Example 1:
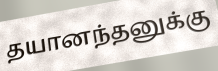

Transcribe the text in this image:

தயானந்தனுக்கு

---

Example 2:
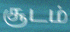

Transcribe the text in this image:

சூடம்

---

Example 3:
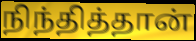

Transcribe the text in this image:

நிந்தித்தான்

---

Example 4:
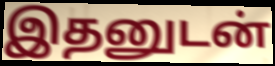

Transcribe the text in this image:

இதனுடன்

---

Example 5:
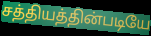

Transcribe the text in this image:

சத்தியத்தின்படியே